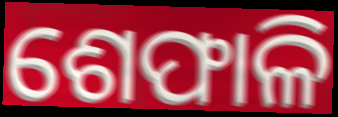
ଶେଫାଳି